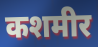
कशमीर